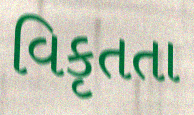
વિકૃતતા